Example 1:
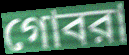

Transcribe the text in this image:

গোবরা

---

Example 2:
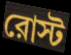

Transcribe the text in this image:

রোস্ট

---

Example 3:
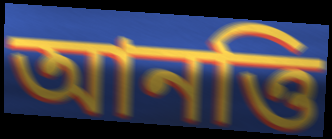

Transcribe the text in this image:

আনত্তি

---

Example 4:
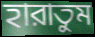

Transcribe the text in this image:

হারাতুম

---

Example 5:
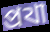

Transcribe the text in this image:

প্রথা